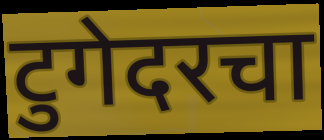
टुगेदरचा